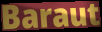
Baraut